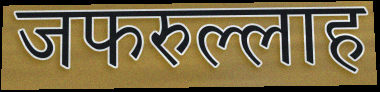
जफरुल्लाह